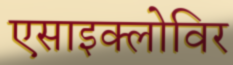
एसाइक्लोविर